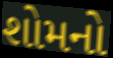
શોમનો